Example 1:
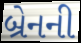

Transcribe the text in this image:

બ્રેનની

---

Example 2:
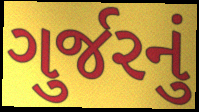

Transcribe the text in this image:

ગુર્જરનું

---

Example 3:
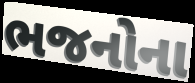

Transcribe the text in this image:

ભજનોના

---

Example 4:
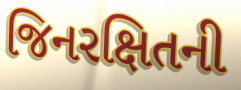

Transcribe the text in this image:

જિનરક્ષિતની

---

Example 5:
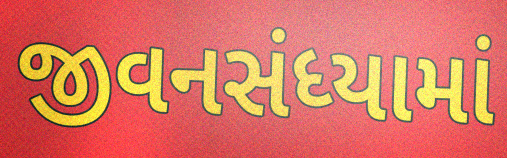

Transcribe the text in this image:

જીવનસંધ્યામાં